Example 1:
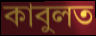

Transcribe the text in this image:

কাবুলত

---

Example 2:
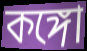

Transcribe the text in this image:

কঙ্গো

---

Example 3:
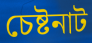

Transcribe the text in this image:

চেষ্টনাট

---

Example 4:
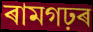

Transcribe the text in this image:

ৰামগঢ়ৰ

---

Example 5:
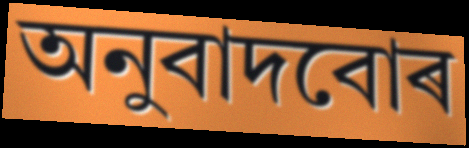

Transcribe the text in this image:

অনুবাদবোৰ